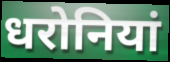
धरोनियां